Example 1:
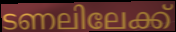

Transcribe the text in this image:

ടണലിലേക്ക്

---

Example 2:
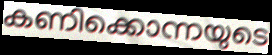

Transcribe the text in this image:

കണിക്കൊന്നയുടെ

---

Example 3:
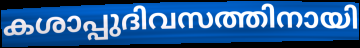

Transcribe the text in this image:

കശാപ്പുദിവസത്തിനായി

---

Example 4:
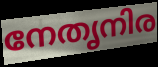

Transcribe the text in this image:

നേതൃനിര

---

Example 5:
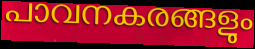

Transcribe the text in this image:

പാവനകരങ്ങളും